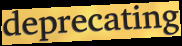
deprecating